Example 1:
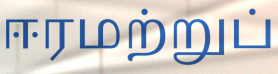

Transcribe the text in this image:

ஈரமற்றுப்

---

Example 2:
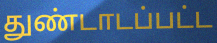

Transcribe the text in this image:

துண்டாடப்பட்ட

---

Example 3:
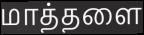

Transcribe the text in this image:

மாத்தளை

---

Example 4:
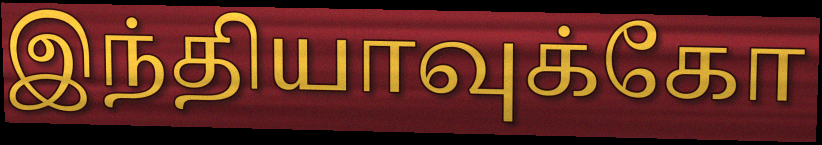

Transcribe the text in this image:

இந்தியாவுக்கோ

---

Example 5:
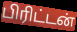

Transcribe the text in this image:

பிரிட்டன்